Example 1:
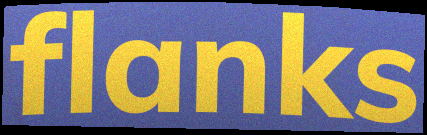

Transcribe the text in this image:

flanks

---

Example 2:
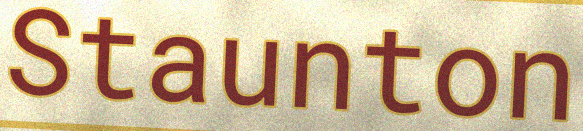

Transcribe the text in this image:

Staunton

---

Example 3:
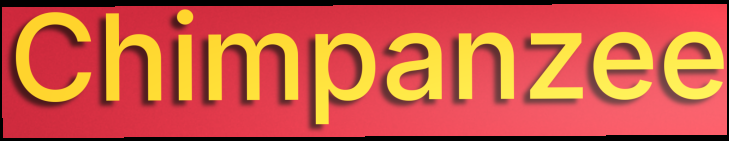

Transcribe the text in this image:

Chimpanzee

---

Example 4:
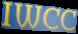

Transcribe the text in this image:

IWCC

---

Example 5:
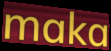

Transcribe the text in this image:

maka